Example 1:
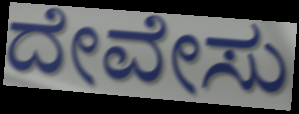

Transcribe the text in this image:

ದೇವೇಸು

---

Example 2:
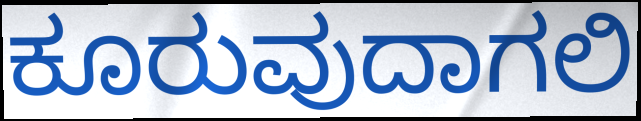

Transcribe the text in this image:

ಕೂರುವುದಾಗಲಿ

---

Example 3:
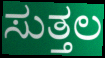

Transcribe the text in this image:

ಸುತ್ತಲ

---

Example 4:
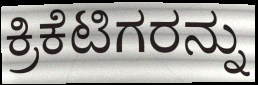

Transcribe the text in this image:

ಕ್ರಿಕೆಟಿಗರನ್ನು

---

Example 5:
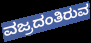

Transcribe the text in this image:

ವಜ್ರದಂತಿರುವ